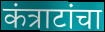
कंत्राटांचा